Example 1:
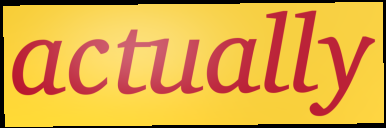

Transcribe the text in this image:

actually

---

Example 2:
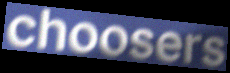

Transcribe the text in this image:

choosers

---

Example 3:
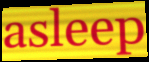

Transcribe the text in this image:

asleep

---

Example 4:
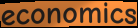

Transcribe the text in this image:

economics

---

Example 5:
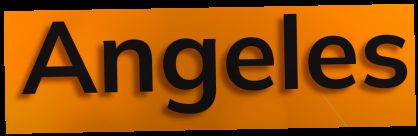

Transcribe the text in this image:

Angeles